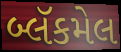
બ્લૅકમેલ